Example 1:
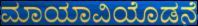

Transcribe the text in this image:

ಮಾಯಾವಿಯೊಡನೆ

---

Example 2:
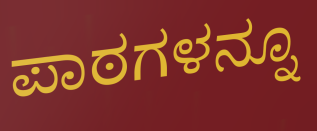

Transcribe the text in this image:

ಪಾಠಗಳನ್ನೂ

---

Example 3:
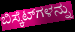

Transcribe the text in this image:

ಬಿಸ್ಕೆಟ್‌ಗಳನ್ನು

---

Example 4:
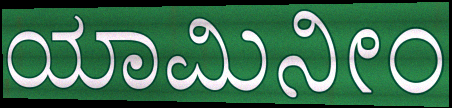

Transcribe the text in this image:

ಯಾಮಿನೀಂ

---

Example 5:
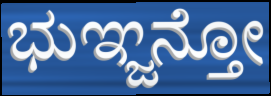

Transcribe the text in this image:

ಭುಞ್ಜನ್ತೋ